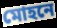
মোহনে